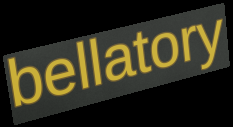
bellatory